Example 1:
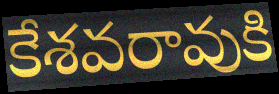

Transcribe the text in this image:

కేశవరావుకి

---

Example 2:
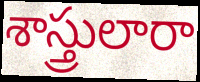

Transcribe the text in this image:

శాస్త్రులారా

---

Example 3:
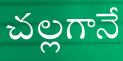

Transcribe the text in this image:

చల్లగానే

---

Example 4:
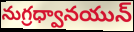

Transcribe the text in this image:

నుగ్రధ్వానయున్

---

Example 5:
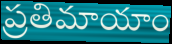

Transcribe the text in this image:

ప్రతిమాయాం